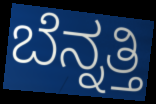
ಬೆನ್ನತ್ತಿ